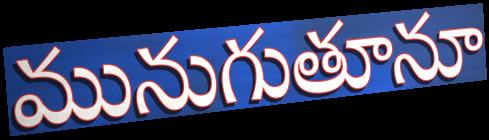
మునుగుతూనూ